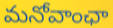
మనోవాంఛా